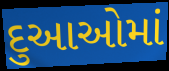
દુઆઓમાં